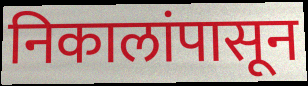
निकालांपासून